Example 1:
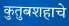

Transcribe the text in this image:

कुतुबशहाचे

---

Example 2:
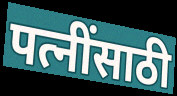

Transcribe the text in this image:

पत्नींसाठी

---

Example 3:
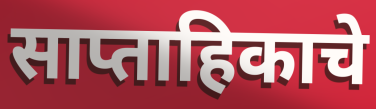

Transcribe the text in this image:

साप्ताहिकाचे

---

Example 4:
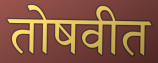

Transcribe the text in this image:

तोषवीत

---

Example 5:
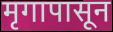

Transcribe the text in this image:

मृगापासून